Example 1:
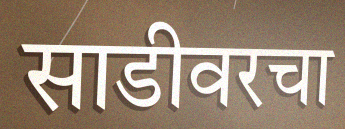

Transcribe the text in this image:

साडीवरचा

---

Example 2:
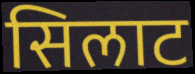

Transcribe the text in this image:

सिलाट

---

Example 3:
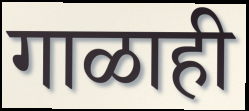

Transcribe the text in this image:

गाळाही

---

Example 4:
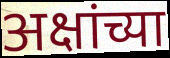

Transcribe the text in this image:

अक्षांच्या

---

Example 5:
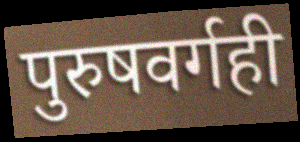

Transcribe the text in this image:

पुरुषवर्गही